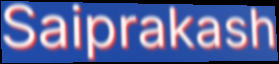
Saiprakash